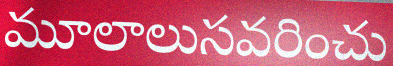
మూలాలుసవరించు